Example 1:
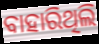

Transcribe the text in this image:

ବାହାରିଥିଲି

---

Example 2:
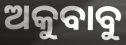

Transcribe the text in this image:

ଅକୁବାବୁ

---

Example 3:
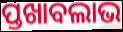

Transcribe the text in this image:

ପ୍ତଖାବଲାଭ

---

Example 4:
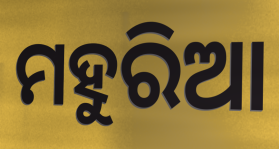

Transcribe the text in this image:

ମହୁରିଆ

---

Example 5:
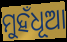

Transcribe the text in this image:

ମୁହଁଧୂଆ